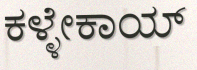
ಕಳ್ಳೇಕಾಯ್